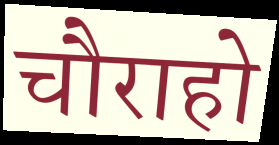
चौराहो